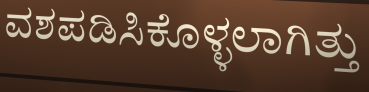
ವಶಪಡಿಸಿಕೊಳ್ಳಲಾಗಿತ್ತು